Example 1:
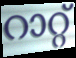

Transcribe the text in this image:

റാറ്റ്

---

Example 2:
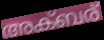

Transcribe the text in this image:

അക്ബര്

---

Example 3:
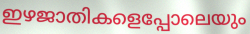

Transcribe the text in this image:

ഇഴജാതികളെപ്പോലെയും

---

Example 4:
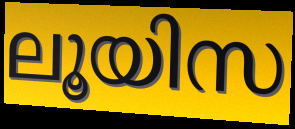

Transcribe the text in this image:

ലൂയിസ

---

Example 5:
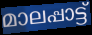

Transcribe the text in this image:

മാലപ്പാട്ട്